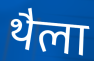
थैला